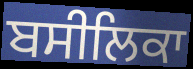
ਬਸੀਲਿਕਾ